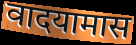
वादयामास